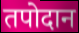
तपोदान